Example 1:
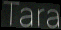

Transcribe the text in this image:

Tara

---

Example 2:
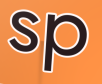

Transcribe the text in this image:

sp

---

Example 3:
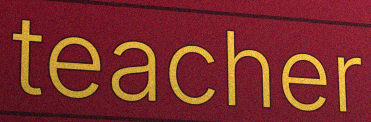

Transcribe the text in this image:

teacher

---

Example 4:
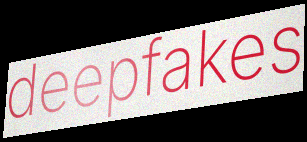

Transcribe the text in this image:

deepfakes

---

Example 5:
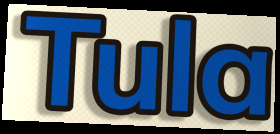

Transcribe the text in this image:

Tula